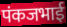
पंकजभाई